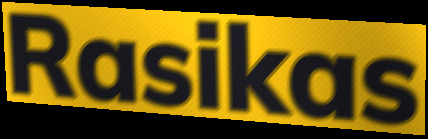
Rasikas